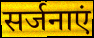
सर्जनाएं